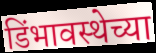
डिंभावस्थेच्या